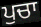
ਪੁਚਾ